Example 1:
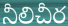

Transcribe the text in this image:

నీలిచీర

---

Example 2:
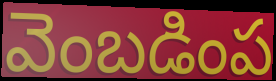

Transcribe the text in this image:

వెంబడింప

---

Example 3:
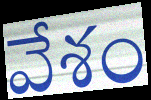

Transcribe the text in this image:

వేశం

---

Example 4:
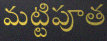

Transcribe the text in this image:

మట్టిపూత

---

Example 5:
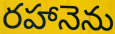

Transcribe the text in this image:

రహానెను